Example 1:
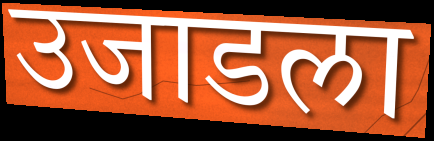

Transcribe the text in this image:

उजाडला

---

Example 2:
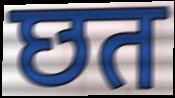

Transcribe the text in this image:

छत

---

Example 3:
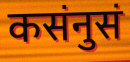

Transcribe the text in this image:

कसंनुसं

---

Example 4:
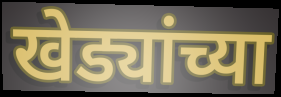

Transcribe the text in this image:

खेड्यांच्या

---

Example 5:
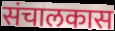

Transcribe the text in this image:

संचालकास